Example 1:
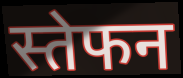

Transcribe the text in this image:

स्तेफन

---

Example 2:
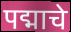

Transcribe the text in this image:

पद्माचे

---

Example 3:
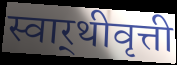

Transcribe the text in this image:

स्वार्थीवृत्ती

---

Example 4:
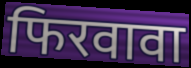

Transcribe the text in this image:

फिरवावा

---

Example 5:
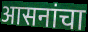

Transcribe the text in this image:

आसनांचा